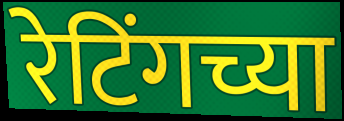
रेटिंगच्या